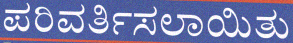
ಪರಿವರ್ತಿಸಲಾಯಿತು